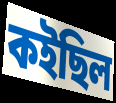
কইছিল